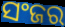
ସଂଜର